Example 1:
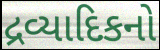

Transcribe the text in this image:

દ્રવ્યાદિકનો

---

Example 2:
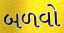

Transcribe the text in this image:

બળવો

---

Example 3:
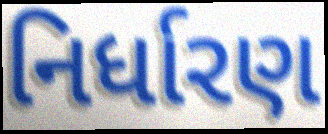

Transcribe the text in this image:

નિર્ધારણ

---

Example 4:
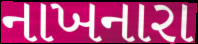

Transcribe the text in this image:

નાખનારા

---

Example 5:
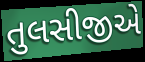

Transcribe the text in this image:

તુલસીજીએ